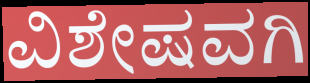
ವಿಶೇಷವಗಿ